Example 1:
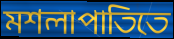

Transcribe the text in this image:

মশলাপাতিতে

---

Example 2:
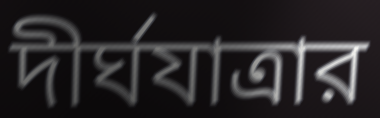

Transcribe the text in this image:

দীর্ঘযাত্রার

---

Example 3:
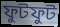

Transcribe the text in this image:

ফুটফুট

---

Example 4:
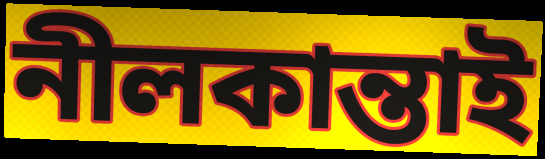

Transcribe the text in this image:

নীলকান্তাই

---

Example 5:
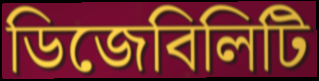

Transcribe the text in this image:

ডিজেবিলিটি